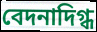
বেদনাদিগ্ধ